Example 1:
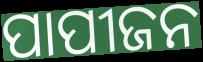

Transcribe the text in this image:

ପାପୀଜନ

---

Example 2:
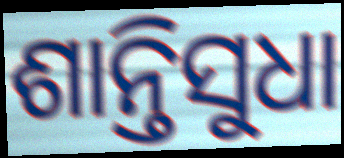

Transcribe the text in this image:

ଶାନ୍ତିସୁଧା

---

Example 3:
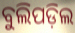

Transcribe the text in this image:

ବୁଲିପଡ଼ିଲ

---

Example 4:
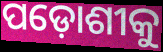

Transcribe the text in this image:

ପଡ଼ୋଶୀକୁ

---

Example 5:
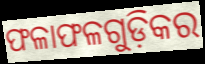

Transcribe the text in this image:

ଫଳାଫଳଗୁଡ଼ିକର